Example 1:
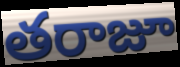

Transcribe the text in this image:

తరాజూ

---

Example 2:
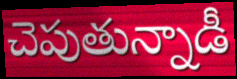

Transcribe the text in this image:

చెపుతున్నాడీ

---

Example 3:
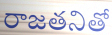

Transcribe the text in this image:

రాజతనితో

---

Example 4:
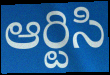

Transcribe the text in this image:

ఆర్టిసి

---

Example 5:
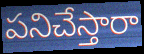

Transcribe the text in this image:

పనిచేస్తారా